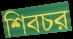
শিবচর